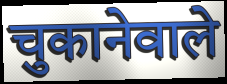
चुकानेवाले